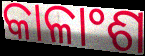
କାଳାଂଶ